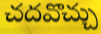
చదవొచ్చు